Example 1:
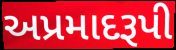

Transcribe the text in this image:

અપ્રમાદરૂપી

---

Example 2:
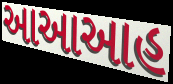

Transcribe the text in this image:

આઆઆહ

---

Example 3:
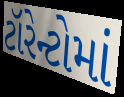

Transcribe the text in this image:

ટૉરેન્ટોમાં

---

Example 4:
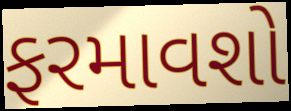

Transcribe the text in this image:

ફરમાવશો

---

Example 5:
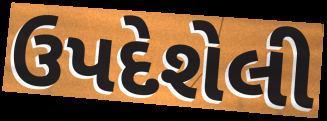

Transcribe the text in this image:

ઉપદેશેલી